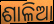
ଶାଳିଆ